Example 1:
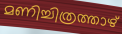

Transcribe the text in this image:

മണിച്ചിത്രത്താഴ്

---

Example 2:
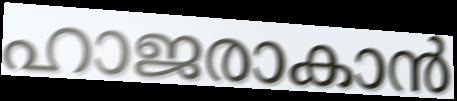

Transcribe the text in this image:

ഹാജരാകാൻ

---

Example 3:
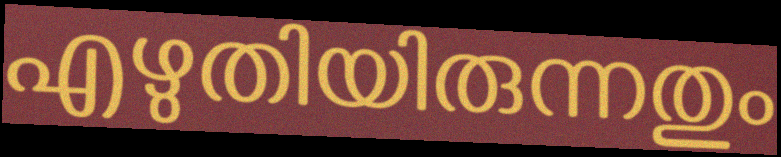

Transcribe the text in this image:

എഴുതിയിരുന്നതും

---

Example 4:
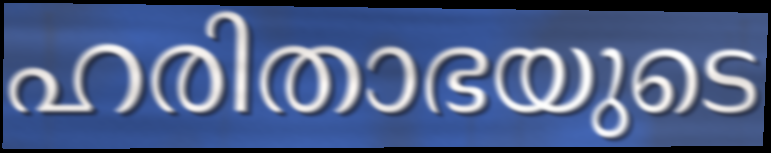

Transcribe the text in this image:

ഹരിതാഭയുടെ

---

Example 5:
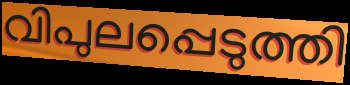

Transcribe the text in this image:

വിപുലപ്പെടുത്തി